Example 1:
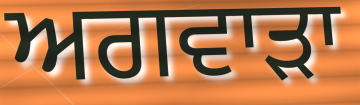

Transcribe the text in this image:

ਅਗਵਾੜਾ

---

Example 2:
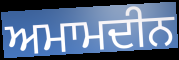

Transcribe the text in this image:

ਅਮਾਮਦੀਨ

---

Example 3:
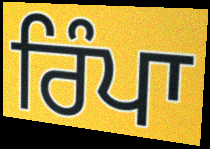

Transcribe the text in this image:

ਰਿੰਪਾ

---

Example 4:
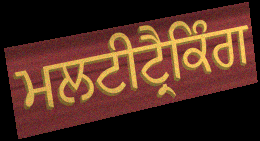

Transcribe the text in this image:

ਮਲਟੀਟ੍ਰੈਕਿੰਗ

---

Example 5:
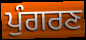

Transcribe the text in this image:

ਪੁੰਗਰਣ